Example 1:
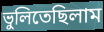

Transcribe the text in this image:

ভুলিতেছিলাম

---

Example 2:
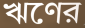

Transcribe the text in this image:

ঋণের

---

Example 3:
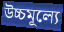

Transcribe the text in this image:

উচ্চমূল্যে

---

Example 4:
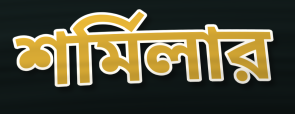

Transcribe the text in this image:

শর্মিলার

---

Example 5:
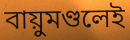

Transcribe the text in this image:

বায়ুমণ্ডলেই